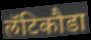
लॅटिकौडा